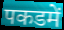
पकडमें